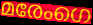
മരേംഗെ